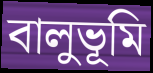
বালুভূমি